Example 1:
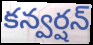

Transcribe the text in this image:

కన్వర్షన్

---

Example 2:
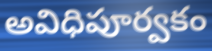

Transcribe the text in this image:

అవిధిపూర్వకం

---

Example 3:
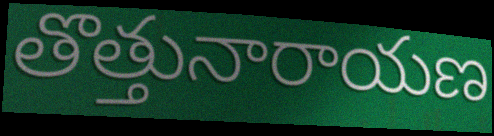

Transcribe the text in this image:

తొత్తునారాయణ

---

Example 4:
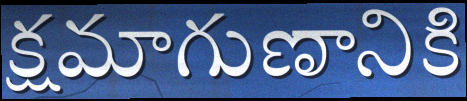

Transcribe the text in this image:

క్షమాగుణానికి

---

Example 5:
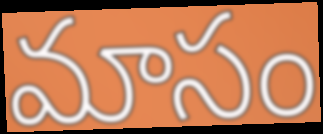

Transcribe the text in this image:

మాసం